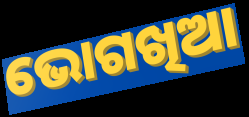
ଭୋଗଖିଆ